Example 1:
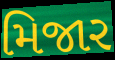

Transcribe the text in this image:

મિજાર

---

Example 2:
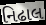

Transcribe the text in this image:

નિઢાલ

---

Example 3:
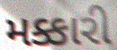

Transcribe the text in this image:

મક્કારી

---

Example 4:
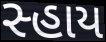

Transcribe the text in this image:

સ્હાય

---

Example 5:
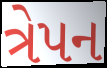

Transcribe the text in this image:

ત્રેપન